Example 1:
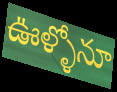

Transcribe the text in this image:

ఊళ్ళోనూ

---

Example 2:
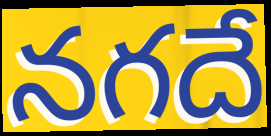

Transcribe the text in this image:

నగదే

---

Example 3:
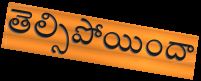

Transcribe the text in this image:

తెల్సిపోయిందా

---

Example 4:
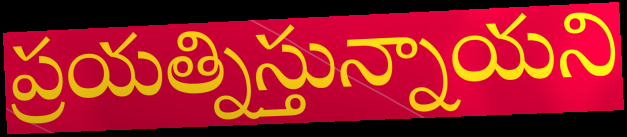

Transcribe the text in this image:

ప్రయత్నిస్తున్నాయని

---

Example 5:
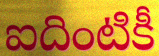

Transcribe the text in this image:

ఐదింటికీ